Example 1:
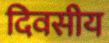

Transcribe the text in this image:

दिवसीय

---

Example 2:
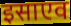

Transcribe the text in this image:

इसाएव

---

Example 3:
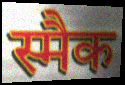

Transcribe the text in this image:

स्मैक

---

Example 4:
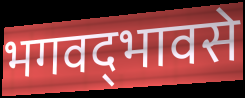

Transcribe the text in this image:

भगवद्भावसे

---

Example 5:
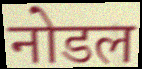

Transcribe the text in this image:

नोडल